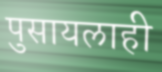
पुसायलाही